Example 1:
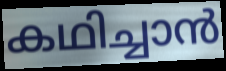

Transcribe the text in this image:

കഥിച്ചാൻ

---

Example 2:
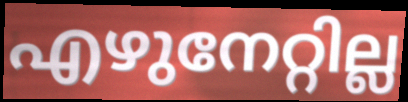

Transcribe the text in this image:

എഴുനേറ്റില്ല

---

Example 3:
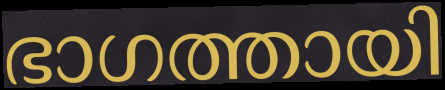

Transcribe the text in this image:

ഭാഗത്തായി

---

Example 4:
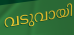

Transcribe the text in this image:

വടുവായി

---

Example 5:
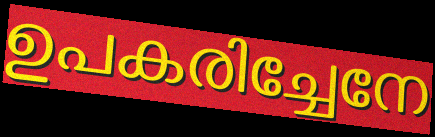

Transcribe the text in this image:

ഉപകരിച്ചേനേ